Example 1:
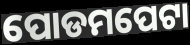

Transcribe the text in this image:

ପୋଡମପେଟା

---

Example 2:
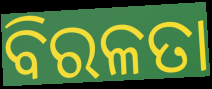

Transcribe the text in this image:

ବିରଳତା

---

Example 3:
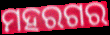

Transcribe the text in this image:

ମହରଗର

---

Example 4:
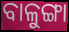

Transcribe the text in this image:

ବାଳୁଙ୍ଗା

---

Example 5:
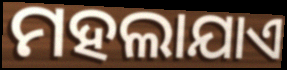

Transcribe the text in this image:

ମହଲାଯାଏ